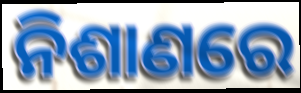
ନିଶାଣରେ